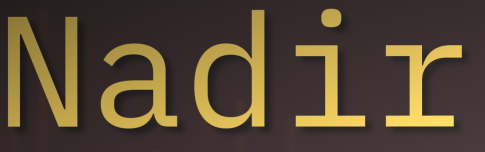
Nadir